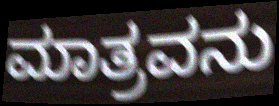
ಮಾತ್ರವನು